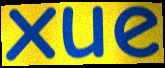
xue